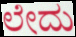
ಲೇದು